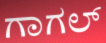
ಗಾಗಲ್